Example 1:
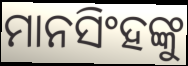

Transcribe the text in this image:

ମାନସିଂହଙ୍କୁ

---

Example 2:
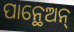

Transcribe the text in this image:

ପାନ୍ଥେଅନ୍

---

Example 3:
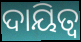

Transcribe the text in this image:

ଦାୟିତ୍ବ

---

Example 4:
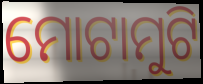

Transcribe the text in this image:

ମୋଟାମୁଟି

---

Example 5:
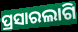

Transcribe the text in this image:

ପ୍ରସାରଲାଗି